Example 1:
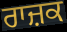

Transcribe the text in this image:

ਰਾਜ਼ਕ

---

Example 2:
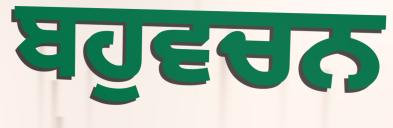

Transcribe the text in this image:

ਬਹੁਵਚਨ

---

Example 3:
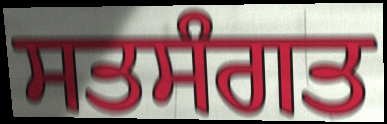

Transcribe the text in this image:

ਸਤਸੰਗਤ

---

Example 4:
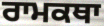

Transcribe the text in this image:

ਰਾਮਕਥਾ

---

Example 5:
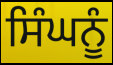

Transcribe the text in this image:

ਸਿੰਘਨੂੰ